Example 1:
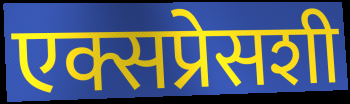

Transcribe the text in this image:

एक्सप्रेसशी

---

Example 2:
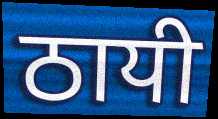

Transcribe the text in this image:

ठायी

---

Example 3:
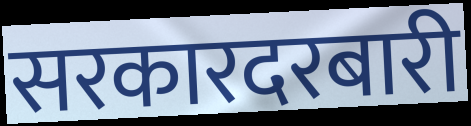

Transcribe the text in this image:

सरकारदरबारी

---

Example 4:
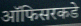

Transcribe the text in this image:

ऑफिसरकडे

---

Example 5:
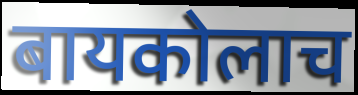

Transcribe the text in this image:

बायकोलाच